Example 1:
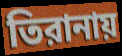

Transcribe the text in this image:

তিরানায়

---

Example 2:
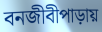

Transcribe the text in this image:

বনজীবীপাড়ায়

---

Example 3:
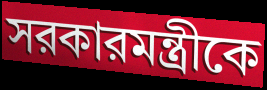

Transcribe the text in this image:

সরকারমন্ত্রীকে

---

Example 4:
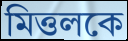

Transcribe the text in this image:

মিত্তলকে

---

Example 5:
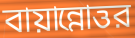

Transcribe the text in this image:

বায়ান্নোত্তর